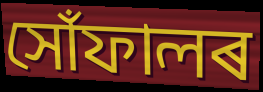
সোঁফালৰ